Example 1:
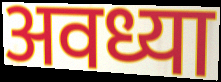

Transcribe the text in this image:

अवध्या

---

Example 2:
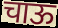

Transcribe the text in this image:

चाऊ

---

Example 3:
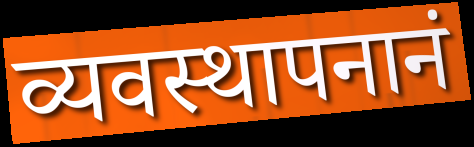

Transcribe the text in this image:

व्यवस्थापनानं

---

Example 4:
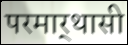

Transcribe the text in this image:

परमार्थासी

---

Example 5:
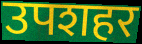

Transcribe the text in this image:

उपशहर